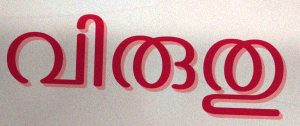
വിരുതു